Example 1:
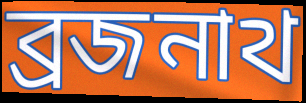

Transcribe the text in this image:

ব্রজনাথ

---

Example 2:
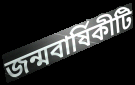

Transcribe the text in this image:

জন্মবার্ষিকীটি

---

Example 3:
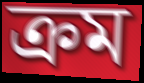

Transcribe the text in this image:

ক্রম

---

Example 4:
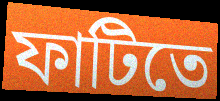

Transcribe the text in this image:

ফাটিতে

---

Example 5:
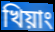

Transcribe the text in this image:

খিয়াং